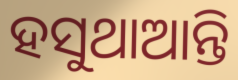
ହସୁଥାଆନ୍ତି